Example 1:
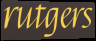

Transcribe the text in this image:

rutgers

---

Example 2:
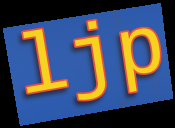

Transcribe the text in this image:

ljp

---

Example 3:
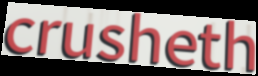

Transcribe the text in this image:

crusheth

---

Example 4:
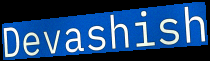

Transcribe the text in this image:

Devashish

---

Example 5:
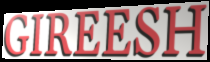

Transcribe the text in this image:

GIREESH